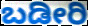
ಬಡೀರಿ